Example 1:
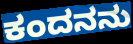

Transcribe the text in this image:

ಕಂದನನು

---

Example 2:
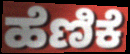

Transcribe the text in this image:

ಹೆಣಿಕೆ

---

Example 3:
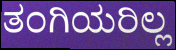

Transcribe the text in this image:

ತಂಗಿಯರಿಲ್ಲ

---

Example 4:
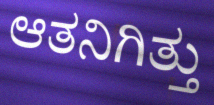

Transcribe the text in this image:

ಆತನಿಗಿತ್ತು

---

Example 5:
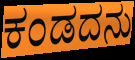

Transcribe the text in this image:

ಕಂಡದನು